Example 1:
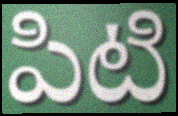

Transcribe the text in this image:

పిటి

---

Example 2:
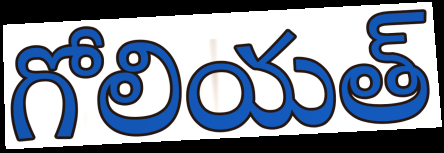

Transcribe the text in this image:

గోలియత్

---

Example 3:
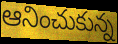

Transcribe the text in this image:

ఆనించుకున్న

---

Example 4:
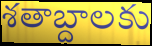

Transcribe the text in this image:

శతాబ్దాలకు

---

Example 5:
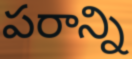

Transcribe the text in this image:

పరాన్ని